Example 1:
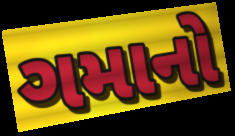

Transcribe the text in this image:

ગમાનો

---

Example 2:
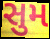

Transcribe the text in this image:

સુમ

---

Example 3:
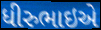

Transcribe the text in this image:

ધીરુભાઇએ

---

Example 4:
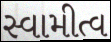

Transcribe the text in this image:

સ્વામીત્વ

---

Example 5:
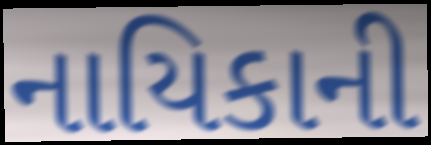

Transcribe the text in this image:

નાયિકાની